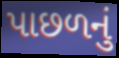
પાછળનું